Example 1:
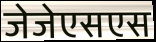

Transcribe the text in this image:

जेजेएसएस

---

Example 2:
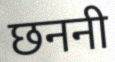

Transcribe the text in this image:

छननी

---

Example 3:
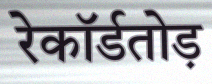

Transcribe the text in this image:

रेकॉर्डतोड़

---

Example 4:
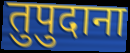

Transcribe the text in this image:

तुपुदाना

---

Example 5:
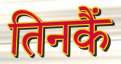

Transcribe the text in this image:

तिनकैं